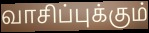
வாசிப்புக்கும்